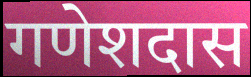
गणेशदास